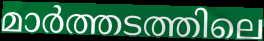
മാർത്തടത്തിലെ